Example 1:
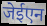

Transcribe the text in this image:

जेईएन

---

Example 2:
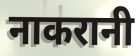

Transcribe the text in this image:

नाकरानी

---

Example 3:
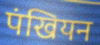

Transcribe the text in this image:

पंखियन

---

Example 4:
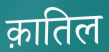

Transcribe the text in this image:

क़ातिल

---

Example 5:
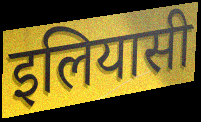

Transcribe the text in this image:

इलियासी